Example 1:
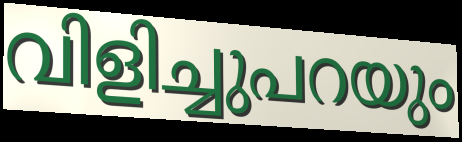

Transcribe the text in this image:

വിളിച്ചുപറയും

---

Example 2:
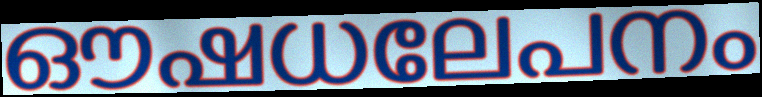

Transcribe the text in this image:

ഔഷധലേപനം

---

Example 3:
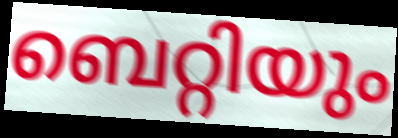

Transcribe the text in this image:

ബെറ്റിയും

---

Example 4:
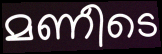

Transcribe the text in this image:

മണീടെ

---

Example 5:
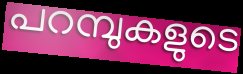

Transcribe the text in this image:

പറമ്പുകളുടെ